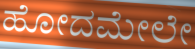
ಹೋದಮೇಲೇ